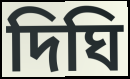
দিঘি